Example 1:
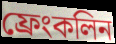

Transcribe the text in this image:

ফ্ৰেংকলিন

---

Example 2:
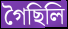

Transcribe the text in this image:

গৈছিলি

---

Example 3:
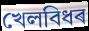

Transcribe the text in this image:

খেলবিধৰ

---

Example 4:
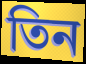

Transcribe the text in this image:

তিন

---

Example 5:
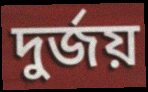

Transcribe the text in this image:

দুৰ্জয়